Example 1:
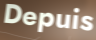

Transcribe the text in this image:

Depuis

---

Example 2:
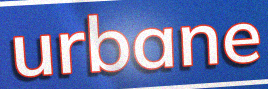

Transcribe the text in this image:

urbane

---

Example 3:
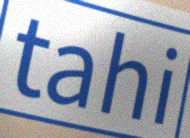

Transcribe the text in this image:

tahi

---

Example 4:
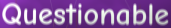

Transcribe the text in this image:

Questionable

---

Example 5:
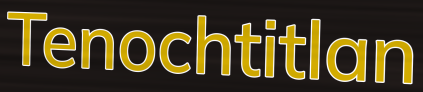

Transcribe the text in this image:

Tenochtitlan